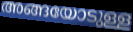
അങ്ങയോടുള്ള